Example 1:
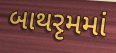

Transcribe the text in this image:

બાથરૃમમાં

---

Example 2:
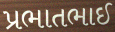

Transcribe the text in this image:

પ્રભાતભાઈ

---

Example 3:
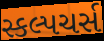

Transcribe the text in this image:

સ્કલ્પચર્સ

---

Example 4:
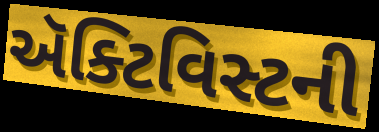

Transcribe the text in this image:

ઍક્ટિવિસ્ટની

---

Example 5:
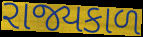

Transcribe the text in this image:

રાજ્યકાળ